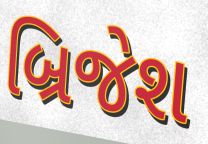
બ્રિજેશ